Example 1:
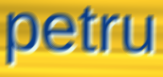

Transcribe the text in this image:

petru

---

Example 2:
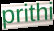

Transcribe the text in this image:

prithi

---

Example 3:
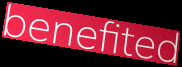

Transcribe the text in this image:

benefited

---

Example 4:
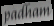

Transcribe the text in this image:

padham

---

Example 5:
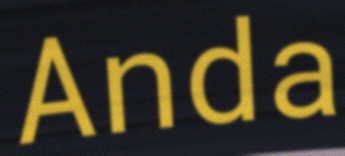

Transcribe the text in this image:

Anda